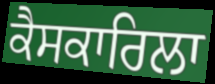
ਕੈਸਕਾਰਿਲਾ